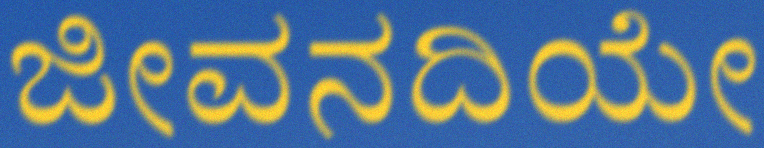
ಜೀವನದಿಯೇ